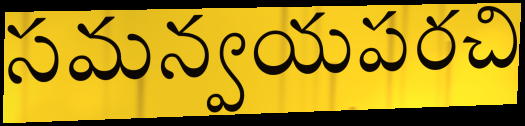
సమన్వయపరచి